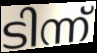
ടിന്ന്